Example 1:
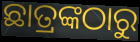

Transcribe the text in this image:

ଛାତ୍ରଙ୍କଠାରୁ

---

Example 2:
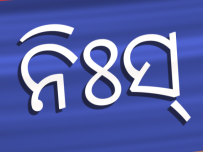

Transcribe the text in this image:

ନିଃସ୍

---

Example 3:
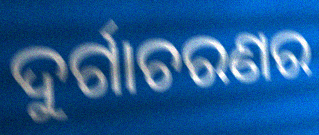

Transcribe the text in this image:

ଦୁର୍ଗାଚରଣର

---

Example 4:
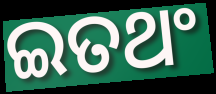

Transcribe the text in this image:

ଇତଥଂ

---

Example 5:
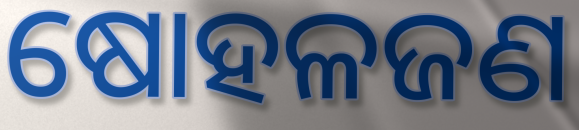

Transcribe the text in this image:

ଷୋହଳଜଣ